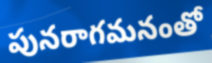
పునరాగమనంతో